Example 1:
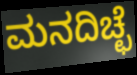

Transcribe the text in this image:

ಮನದಿಚ್ಛೆ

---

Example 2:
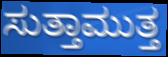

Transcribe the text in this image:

ಸುತ್ತಾಮುತ್ತ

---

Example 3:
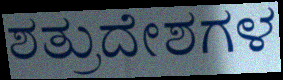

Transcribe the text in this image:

ಶತ್ರುದೇಶಗಳ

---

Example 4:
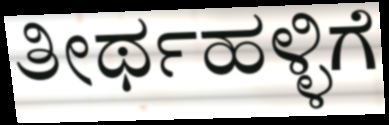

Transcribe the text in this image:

ತೀರ್ಥಹಳ್ಳಿಗೆ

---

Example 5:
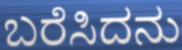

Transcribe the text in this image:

ಬರೆಸಿದನು